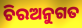
ଚିରଅନୁଗତ